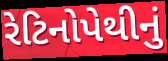
રેટિનોપેથીનું